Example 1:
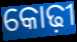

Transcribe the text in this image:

କୋଢ଼ୀ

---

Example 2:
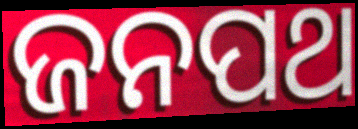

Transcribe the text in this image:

ଜନପଥ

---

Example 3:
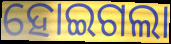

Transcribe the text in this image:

ହୋଇଗଲା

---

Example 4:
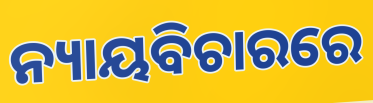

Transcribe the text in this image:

ନ୍ୟାୟବିଚାରରେ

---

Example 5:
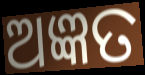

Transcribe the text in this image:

ଅଜ୍ଞତ